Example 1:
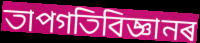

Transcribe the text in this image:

তাপগতিবিজ্ঞানৰ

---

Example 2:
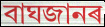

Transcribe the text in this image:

বাঘজানৰ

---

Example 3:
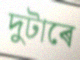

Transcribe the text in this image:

দুটাৰে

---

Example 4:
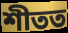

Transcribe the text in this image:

শীতত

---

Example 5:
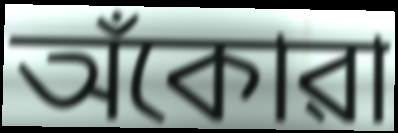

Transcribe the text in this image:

অঁকোৱা